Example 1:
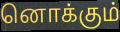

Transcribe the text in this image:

னொக்கும்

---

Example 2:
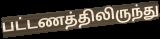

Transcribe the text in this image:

பட்டணத்திலிருந்து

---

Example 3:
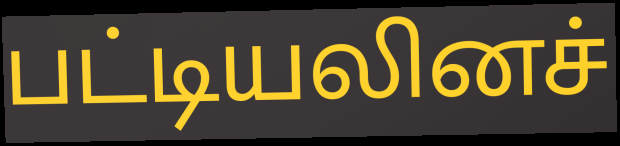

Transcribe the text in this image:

பட்டியலினச்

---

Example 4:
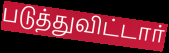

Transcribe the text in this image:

படுத்துவிட்டார்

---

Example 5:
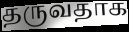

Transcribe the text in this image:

தருவதாக